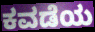
ಕವಡೆಯ